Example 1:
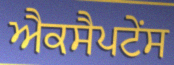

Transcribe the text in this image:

ਐਕਸੈਪਟੇਂਸ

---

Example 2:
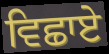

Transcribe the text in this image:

ਵਿਛਾਏ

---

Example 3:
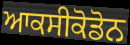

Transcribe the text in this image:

ਆਕਸੀਕੋਡੋਨ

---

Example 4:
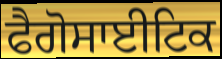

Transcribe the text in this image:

ਫੈਗੋਸਾਈਟਿਕ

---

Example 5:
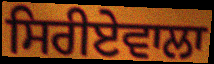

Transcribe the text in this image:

ਸਿਰੀਏਵਾਲਾ